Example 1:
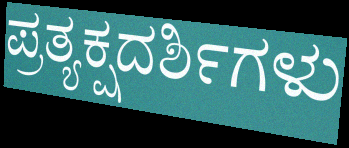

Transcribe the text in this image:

ಪ್ರತ್ಯಕ್ಷದರ್ಶಿಗಳು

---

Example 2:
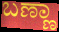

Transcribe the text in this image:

ಬಣ್ಣಾ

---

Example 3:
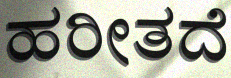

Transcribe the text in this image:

ಹರೀತದೆ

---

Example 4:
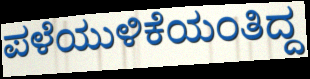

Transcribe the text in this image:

ಪಳೆಯುಳಿಕೆಯಂತಿದ್ದ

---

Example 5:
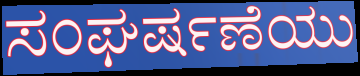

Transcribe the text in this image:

ಸಂಘರ್ಷಣೆಯು